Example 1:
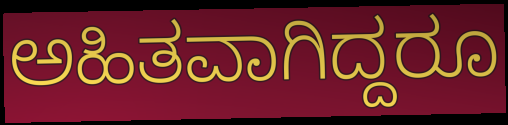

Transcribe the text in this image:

ಅಹಿತವಾಗಿದ್ದರೂ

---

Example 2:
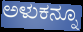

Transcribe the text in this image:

ಅಳುಕನ್ನೂ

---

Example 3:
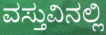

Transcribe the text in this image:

ವಸ್ತುವಿನಲ್ಲಿ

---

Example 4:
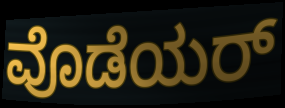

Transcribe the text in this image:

ವೊಡೆಯರ್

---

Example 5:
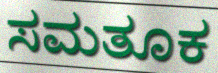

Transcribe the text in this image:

ಸಮತೂಕ